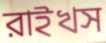
রাইখস